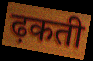
ढ़कती